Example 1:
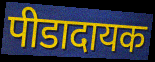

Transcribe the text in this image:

पीडादायक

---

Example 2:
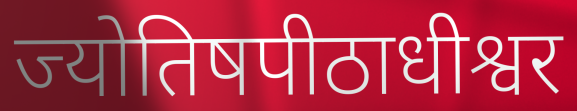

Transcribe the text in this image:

ज्योतिषपीठाधीश्वर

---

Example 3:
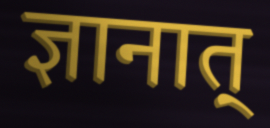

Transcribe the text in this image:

ज्ञानात्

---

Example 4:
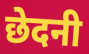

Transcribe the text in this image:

छेदनी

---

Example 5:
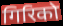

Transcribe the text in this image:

गिरिको